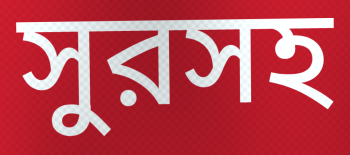
সুরসহ